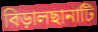
বিড়ালছানাটি